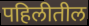
पहिलीतील